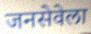
जनसेवेला